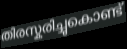
തിരസ്കരിച്ചുകൊണ്ട്